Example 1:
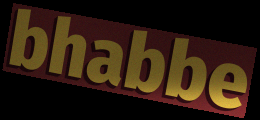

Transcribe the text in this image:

bhabbe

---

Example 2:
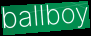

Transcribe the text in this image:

ballboy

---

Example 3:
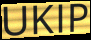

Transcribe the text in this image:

UKIP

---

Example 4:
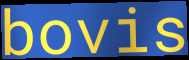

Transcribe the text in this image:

bovis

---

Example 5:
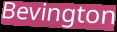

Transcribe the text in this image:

Bevington